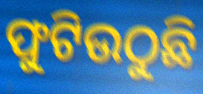
ଫୁଟିଉଠୁଛି